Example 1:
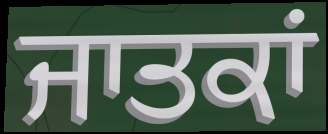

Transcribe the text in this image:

ਜਾਤਕਾਂ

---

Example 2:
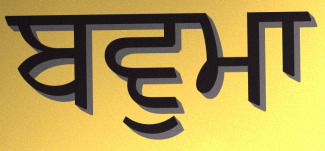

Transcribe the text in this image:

ਬਵੁਮਾ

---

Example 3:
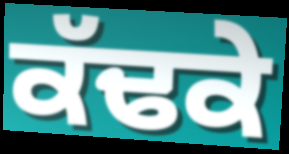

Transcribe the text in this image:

ਕੱਢਕੇ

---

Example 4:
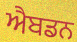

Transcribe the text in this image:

ਐਬਡਨ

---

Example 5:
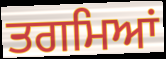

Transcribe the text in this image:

ਤਗਮਿਆਂ